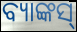
ବ୍ୟାଙ୍କସ୍